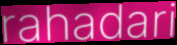
rahadari